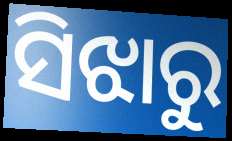
ସିଝାରୁ